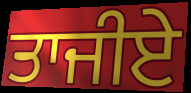
ਤਾਜੀਏ